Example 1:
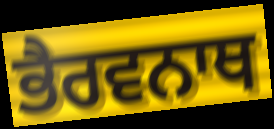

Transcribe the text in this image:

ਭੈਰਵਨਾਥ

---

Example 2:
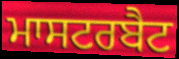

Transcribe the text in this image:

ਮਾਸਟਰਬੈਟ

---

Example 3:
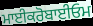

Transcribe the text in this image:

ਮਾਈਕਰੋਬਾਈਓਮ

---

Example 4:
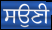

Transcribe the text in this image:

ਸਉਣੀ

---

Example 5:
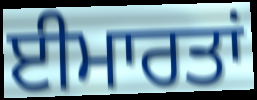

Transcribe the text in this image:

ਈਮਾਰਤਾਂ